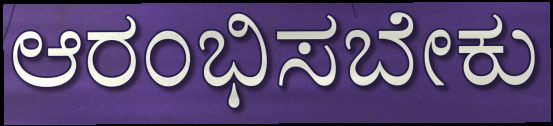
ಆರಂಭಿಸಬೇಕು